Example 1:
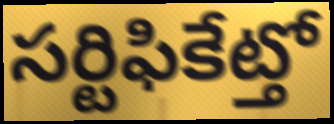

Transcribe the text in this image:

సర్టిఫికేట్తో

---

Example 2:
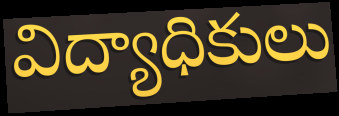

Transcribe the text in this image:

విద్యాధికులు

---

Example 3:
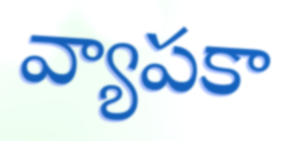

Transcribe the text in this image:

వ్యాపకా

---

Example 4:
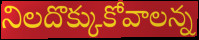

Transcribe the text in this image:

నిలదొక్కుకోవాలన్న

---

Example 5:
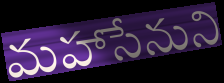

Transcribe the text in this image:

మహాసేనుని